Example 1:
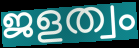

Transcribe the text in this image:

ജളത്വം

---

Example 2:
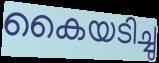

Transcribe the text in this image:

കൈയടിച്ചു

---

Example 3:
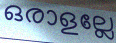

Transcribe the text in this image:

ഒരാളല്ലേ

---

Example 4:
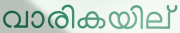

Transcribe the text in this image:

വാരികയില്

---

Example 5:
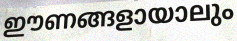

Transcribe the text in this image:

ഈണങ്ങളായാലും